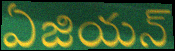
ఏజియన్